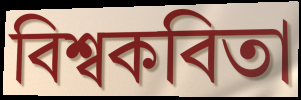
বিশ্বকবিতা